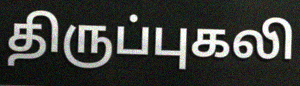
திருப்புகலி